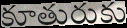
కూతురుకు